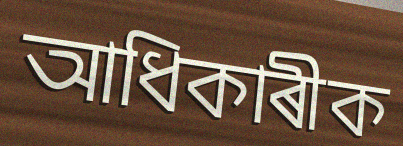
আধিকাৰীক